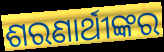
ଶରଣାର୍ଥୀଙ୍କର